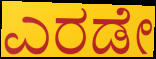
ಎರಡೇ